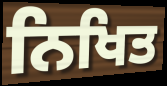
ਨਿਖਿਤ